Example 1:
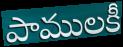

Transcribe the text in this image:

పాములకీ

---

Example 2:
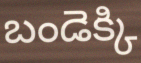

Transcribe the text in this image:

బండెక్కి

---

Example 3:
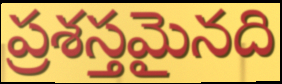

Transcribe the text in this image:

ప్రశస్తమైనది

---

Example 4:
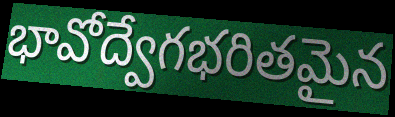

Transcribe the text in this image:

భావోద్వేగభరితమైన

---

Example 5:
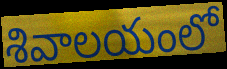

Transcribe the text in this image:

శివాలయంలో